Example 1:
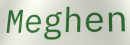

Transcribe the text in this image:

Meghen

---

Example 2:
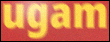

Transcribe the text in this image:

ugam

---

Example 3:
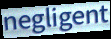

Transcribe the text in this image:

negligent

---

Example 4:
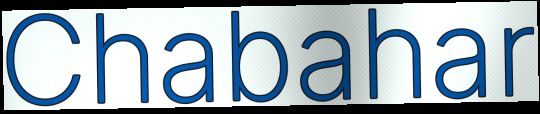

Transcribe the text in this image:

Chabahar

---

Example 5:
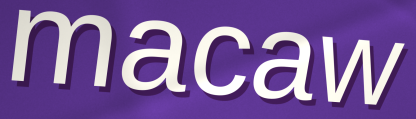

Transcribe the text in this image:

macaw